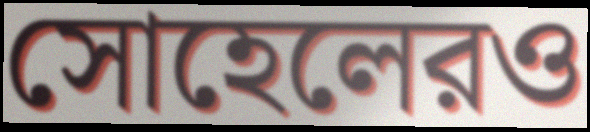
সোহেলেরও